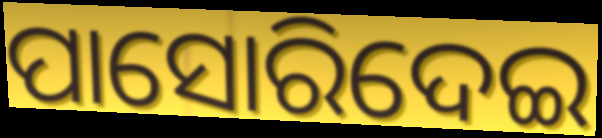
ପାସୋରିଦେଇ